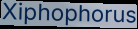
Xiphophorus